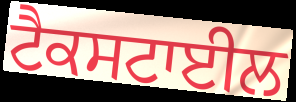
ਟੈਕਸਟਾਈਲ